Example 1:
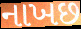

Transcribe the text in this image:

નાખછ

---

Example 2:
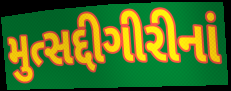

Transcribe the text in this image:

મુત્સદ્દીગીરીનાં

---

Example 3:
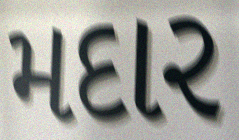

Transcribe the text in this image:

મદાર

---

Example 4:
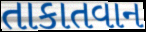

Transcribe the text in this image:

તાકાતવાન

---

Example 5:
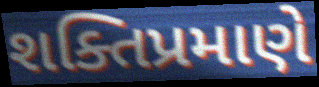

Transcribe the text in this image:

શક્તિપ્રમાણે